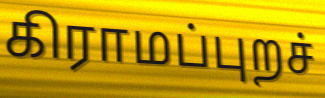
கிராமப்புறச்